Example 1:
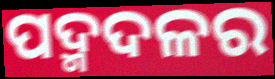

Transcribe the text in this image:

ପଦ୍ମଦଳର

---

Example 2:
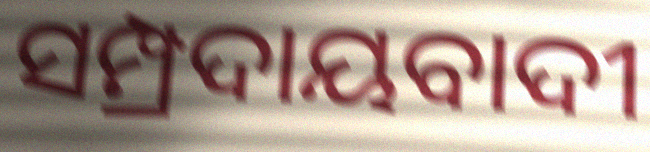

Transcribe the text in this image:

ସମ୍ପ୍ରଦାୟବାଦୀ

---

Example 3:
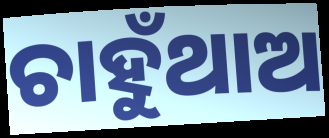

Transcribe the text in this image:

ଚାହୁଁଥାଅ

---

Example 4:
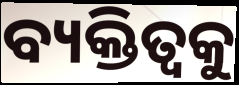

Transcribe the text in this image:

ବ୍ୟକ୍ତିତ୍ଵକୁ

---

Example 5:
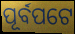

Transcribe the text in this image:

ପୂର୍ବପଟେ